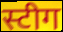
स्टीग